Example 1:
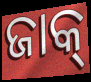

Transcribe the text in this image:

ଜାକ୍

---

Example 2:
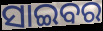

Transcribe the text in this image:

ସାଇବର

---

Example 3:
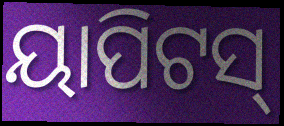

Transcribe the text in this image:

ୟାପିଟସ୍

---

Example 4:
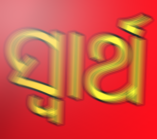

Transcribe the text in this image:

ସ୍ୱାର୍ଥ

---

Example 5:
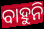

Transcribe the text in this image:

ବାହୁନି